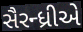
સૈરન્ધ્રીએ